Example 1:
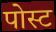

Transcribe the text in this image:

पोस्ट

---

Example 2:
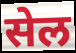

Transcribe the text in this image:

सेल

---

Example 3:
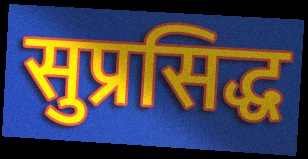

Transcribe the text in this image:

सुप्रसिद्ध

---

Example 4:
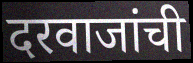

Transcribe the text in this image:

दरवाजांची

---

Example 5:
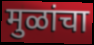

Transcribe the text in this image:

मुळांचा